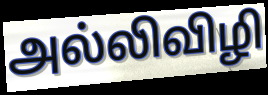
அல்லிவிழி